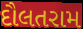
દૌલતરામ